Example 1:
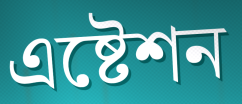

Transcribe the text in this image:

এষ্টেশন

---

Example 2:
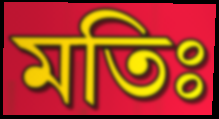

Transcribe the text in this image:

মতিঃ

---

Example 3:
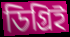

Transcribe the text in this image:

ডিগ্রিই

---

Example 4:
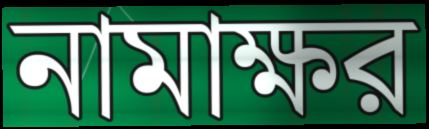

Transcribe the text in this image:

নামাক্ষর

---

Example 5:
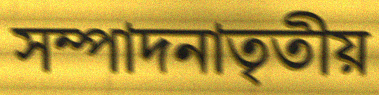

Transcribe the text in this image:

সম্পাদনাতৃতীয়